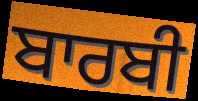
ਬਾਰਬੀ